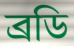
ব্রডি